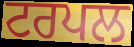
ਟਰਪਲ